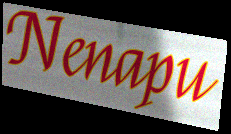
Nenapu